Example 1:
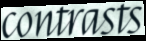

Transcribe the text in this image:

contrasts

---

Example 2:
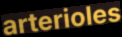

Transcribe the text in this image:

arterioles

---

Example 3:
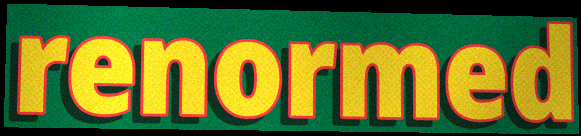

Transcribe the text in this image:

renormed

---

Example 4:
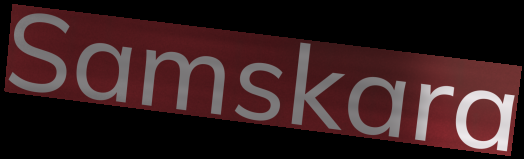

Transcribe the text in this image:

Samskara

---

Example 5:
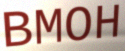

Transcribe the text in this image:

BMOH